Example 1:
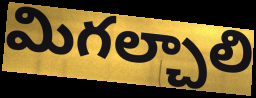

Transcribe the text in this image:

మిగల్చాలి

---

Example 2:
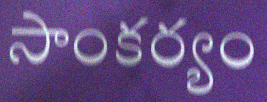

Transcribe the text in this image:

సాంకర్యం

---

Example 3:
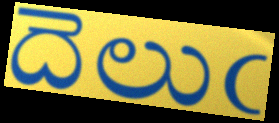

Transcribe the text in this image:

దెలుఁ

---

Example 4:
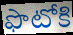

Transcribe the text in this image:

ఫొటోకి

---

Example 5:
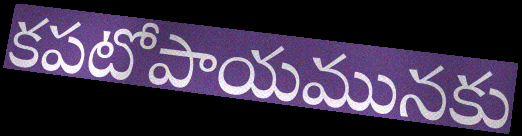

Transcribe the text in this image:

కపటోపాయమునకు